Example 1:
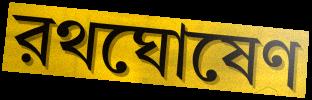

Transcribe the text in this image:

রথঘোষেণ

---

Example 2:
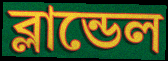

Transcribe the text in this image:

ব্লান্ডেল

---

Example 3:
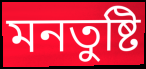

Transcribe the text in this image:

মনতুষ্টি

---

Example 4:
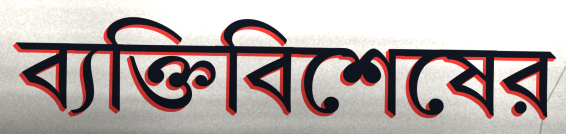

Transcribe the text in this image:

ব্যক্তিবিশেষের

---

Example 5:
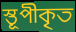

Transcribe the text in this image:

স্তূপীকৃত